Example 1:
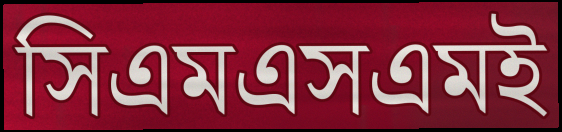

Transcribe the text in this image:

সিএমএসএমই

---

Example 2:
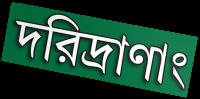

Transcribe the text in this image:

দরিদ্রাণাং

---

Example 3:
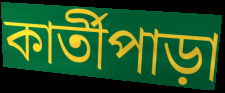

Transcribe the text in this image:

কার্তীপাড়া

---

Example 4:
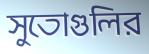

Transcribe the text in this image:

সুতোগুলির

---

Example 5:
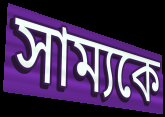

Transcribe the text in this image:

সাম্যকে